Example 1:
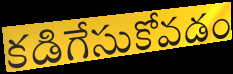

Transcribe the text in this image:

కడిగేసుకోవడం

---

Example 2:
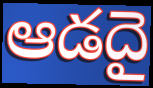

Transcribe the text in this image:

ఆడదై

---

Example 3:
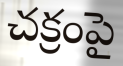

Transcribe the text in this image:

చక్రంపై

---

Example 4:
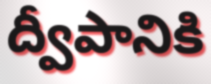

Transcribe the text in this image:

ద్వీపానికి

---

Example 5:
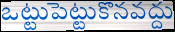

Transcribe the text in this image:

ఒట్టుపెట్టుకొనవద్దు